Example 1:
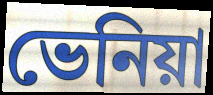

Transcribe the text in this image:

ভেনিয়া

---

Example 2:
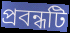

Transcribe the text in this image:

প্ৰবন্ধটি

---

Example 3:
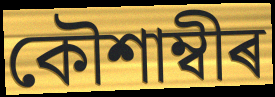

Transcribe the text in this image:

কৌশাম্বীৰ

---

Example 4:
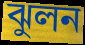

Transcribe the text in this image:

ঝুলন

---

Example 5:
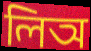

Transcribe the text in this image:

লিঅ